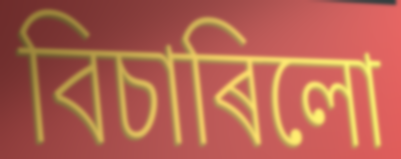
বিচাৰিলো